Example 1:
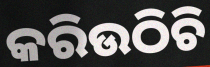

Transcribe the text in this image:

କରିଉଠିଚି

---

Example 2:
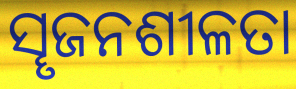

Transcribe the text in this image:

ସୄଜନଶୀଳତା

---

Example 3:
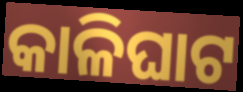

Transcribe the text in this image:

କାଳିଘାଟ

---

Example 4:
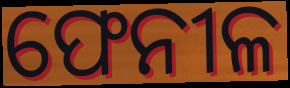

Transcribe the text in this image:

ଫେନୀଳ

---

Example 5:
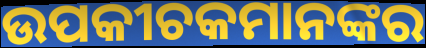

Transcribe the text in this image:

ଉପକୀଚକମାନଙ୍କର